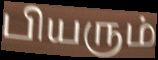
பியரும்